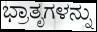
ಭ್ರಾತೃಗಳನ್ನು